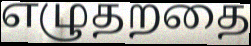
எழுதறதை